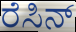
ರೆಸಿನ್